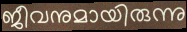
ജീവനുമായിരുന്നു